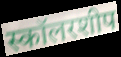
स्कॉलरशीप